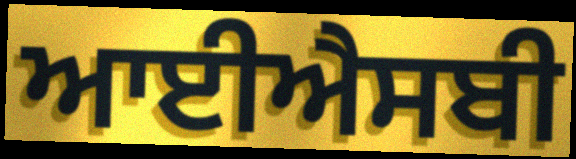
ਆਈਐਸਬੀ